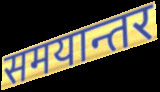
समयान्तर